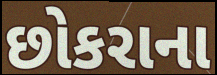
છોકરાના